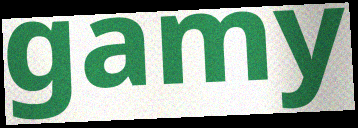
gamy